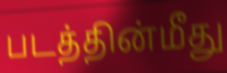
படத்தின்மீது